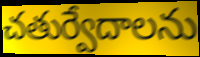
చతుర్వేదాలను